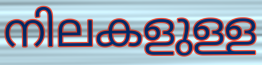
നിലകളുള്ള